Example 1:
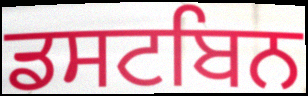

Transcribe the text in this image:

ਡਸਟਬਿਨ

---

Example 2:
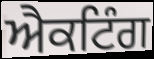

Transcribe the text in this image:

ਐਕਟਿੰਗ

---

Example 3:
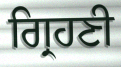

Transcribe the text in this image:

ਗ੍ਰਿਹਣੀ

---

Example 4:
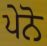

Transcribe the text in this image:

ਪੇਨੋ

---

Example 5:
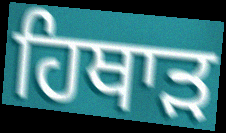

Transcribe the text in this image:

ਹਿਥਾੜ